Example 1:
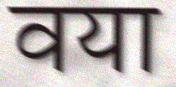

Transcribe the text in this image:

वया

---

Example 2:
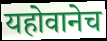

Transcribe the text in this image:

यहोवानेच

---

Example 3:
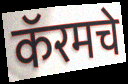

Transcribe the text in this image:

कॅरमचे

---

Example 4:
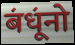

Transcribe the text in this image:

बंधूंनो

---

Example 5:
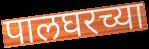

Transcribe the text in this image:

पालघरच्या